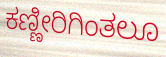
ಕಣ್ಣೀರಿಗಿಂತಲೂ